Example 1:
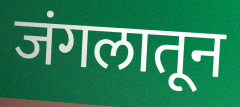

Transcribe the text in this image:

जंगलातून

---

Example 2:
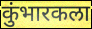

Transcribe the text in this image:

कुंभारकला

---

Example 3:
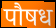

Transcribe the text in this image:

पौषध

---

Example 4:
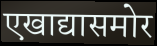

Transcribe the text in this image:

एखाद्यासमोर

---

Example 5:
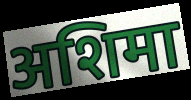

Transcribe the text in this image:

अशिमा